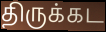
திருக்கட